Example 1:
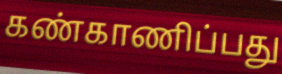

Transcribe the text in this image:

கண்காணிப்பது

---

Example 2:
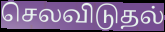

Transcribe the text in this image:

செலவிடுதல்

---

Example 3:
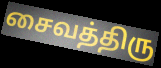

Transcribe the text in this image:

சைவத்திரு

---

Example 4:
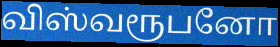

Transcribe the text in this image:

விஸ்வரூபனோ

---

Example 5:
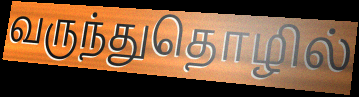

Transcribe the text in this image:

வருந்துதொழில்